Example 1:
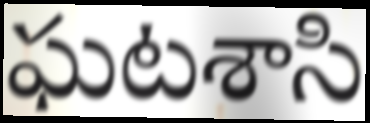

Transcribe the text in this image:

ఘటశాసి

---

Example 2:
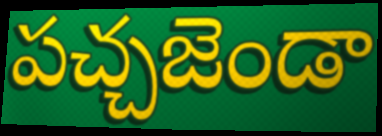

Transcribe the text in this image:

పచ్చజెండా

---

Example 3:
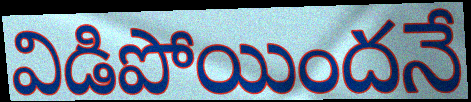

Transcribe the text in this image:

విడిపోయిందనే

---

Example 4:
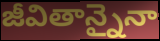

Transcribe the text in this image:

జీవితాన్నైనా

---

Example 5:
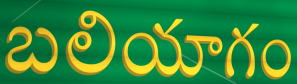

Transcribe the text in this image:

బలియాగం